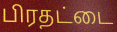
பிரதட்டை